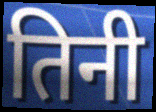
तिनी